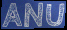
ANU